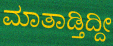
ಮಾತಾಡ್ತಿದ್ದೀ